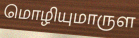
மொழியுமாருள